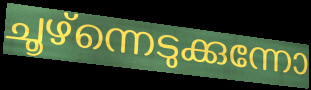
ചൂഴ്ന്നെടുക്കുന്നോ